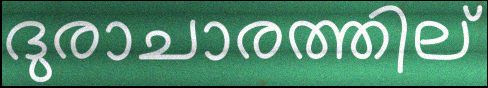
ദുരാചാരത്തില്